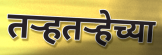
तऱ्हतऱ्हेच्या